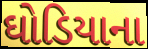
ઘોડિયાના